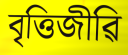
বৃত্তিজীৱি